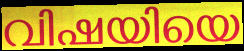
വിഷയിയെ